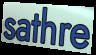
sathre